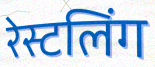
रेस्टलिंग